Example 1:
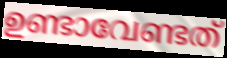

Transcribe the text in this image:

ഉണ്ടാവേണ്ടത്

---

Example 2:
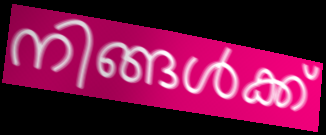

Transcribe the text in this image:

നിങ്ങൾക്ക്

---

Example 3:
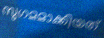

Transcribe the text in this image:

സുഗമമാക്കിയത്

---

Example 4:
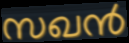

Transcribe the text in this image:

സഖൻ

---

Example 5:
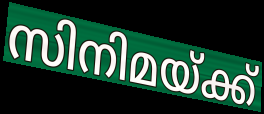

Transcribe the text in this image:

സിനിമയ്ക്ക്